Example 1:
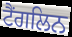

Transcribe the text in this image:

ਟੈਂਗਲਿਨ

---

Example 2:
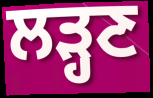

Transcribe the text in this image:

ਲੜ੍ਹਣ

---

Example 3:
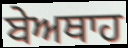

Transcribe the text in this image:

ਬੇਅਥਾਹ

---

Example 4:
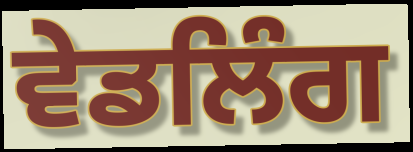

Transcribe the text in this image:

ਵੇਡਲਿੰਗ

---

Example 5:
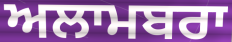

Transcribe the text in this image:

ਅਲਾਮਬਰਾ